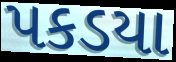
પકડયા